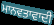
ਮਾਨਵਤਾਵਾਦੀ